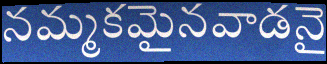
నమ్మకమైనవాడనై